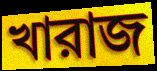
খারাজ